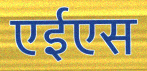
एईएस